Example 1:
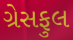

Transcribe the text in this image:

ગ્રેસફુલ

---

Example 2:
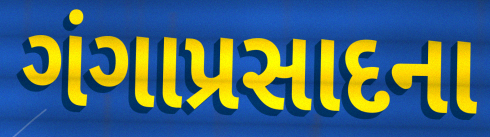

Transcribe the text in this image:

ગંગાપ્રસાદના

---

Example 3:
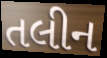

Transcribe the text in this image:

તલીન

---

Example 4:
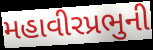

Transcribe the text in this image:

મહાવીરપ્રભુની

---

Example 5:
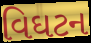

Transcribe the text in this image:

વિઘટન